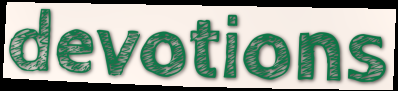
devotions